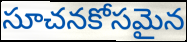
సూచనకోసమైన